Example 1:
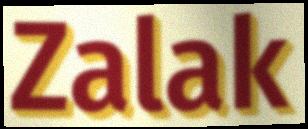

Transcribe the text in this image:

Zalak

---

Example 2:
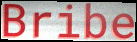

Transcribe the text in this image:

Bribe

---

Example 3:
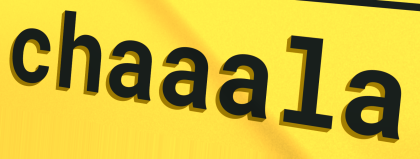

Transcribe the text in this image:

chaaala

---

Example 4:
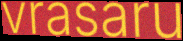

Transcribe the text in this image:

vrasaru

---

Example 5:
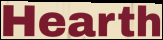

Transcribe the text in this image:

Hearth